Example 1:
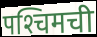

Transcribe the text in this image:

पश्चिमची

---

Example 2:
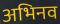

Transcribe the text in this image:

अभिनव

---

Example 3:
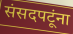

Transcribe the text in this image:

संसदपटूंना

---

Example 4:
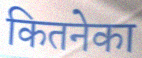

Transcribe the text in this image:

कितनेका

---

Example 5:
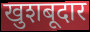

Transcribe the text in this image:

खुशबूदार